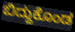
ಬಿದ್ದುಕೊಂಡ